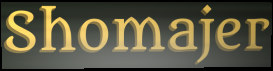
Shomajer